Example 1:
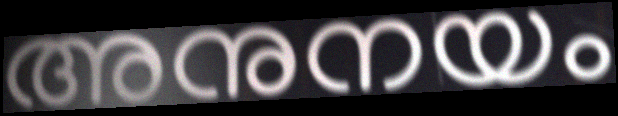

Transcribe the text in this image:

അനുനയം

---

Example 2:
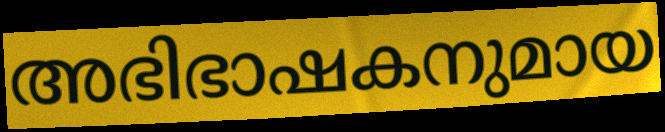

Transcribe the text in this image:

അഭിഭാഷകനുമായ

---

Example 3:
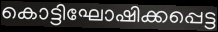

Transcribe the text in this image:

കൊട്ടിഘോഷിക്കപ്പെട്ട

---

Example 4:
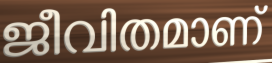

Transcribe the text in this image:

ജീവിതമാണ്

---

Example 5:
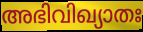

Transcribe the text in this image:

അഭിവിഖ്യാതഃ